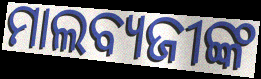
ମାଲବ୍ୟଜୀଙ୍କ